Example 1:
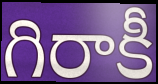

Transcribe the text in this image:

గిరాకీ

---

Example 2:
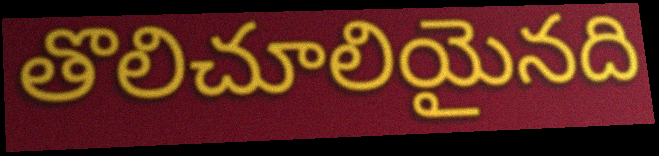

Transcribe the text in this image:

తొలిచూలియైనది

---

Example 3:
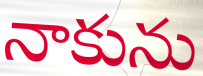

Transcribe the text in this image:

నాకును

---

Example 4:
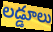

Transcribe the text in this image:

లడ్డూలు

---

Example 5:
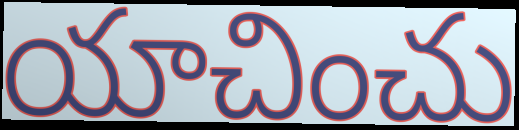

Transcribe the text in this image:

యాచించు